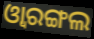
ଓ୍ବାରଙ୍ଗଲ